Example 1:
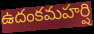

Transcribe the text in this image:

ఉదంకమహర్షి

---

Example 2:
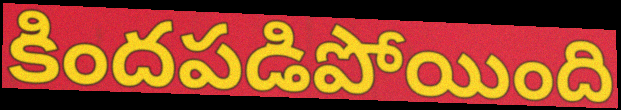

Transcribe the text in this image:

కిందపడిపోయింది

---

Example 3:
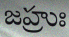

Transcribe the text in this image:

జహ్రుః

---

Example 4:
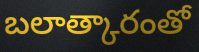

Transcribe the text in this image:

బలాత్కారంతో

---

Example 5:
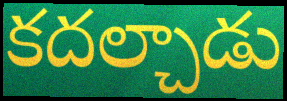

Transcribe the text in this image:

కదల్చాడు